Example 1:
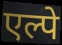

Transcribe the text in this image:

एल्पे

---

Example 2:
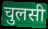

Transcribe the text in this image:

चुलसी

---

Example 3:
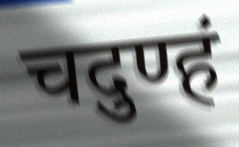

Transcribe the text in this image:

चदुण्हं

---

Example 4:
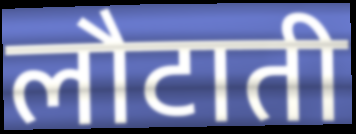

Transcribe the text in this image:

लौटाती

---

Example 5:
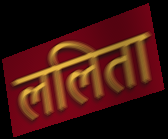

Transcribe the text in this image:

ललिता